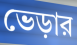
ভেড়ার